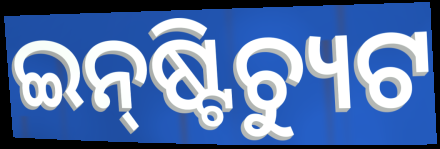
ଇନ୍‌ଷ୍ଟିଚ୍ୟୁଟ